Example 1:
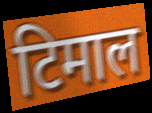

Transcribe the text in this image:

टिमाल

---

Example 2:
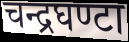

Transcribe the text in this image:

चन्द्रघण्टा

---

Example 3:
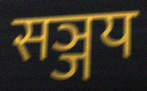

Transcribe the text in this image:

सञ्जय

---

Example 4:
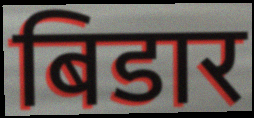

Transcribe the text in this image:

बिडार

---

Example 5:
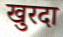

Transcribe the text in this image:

खुरदा